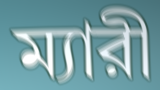
ম্যারী